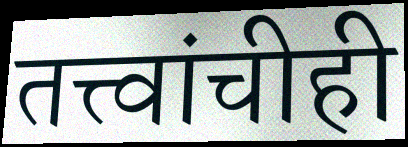
तत्त्वांचीही